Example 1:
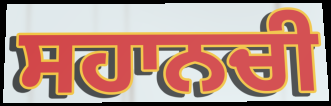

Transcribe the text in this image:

ਸਹਾਨਚੀ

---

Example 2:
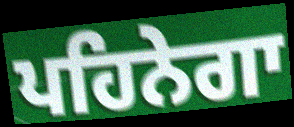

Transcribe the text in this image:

ਪਹਿਨੇਗਾ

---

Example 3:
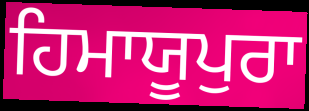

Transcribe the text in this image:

ਹਿਮਾਯੂਪੁਰਾ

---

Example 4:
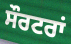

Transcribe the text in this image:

ਸੌਰਟਰਾਂ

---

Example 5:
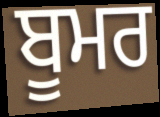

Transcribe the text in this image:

ਬੂਮਰ